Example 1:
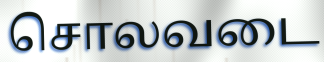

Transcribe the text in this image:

சொலவடை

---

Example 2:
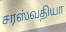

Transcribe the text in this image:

சரஸ்வதியா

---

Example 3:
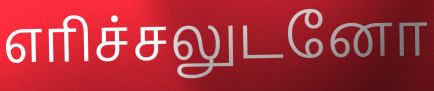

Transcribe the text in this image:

எரிச்சலுடனோ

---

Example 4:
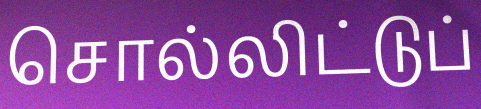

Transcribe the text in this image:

சொல்லிட்டுப்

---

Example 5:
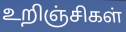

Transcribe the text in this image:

உறிஞ்சிகள்